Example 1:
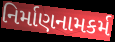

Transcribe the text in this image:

નિર્માણનામકર્મ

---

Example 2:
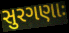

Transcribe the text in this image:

સુરગણાઃ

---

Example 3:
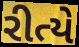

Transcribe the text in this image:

રીત્યે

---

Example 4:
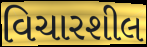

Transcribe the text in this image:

વિચારશીલ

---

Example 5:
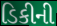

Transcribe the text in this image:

ડિકીની